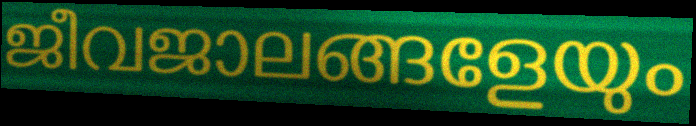
ജീവജാലങ്ങളേയും